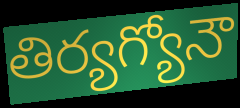
తిర్యగ్యోనౌ